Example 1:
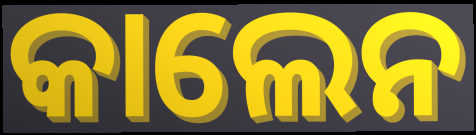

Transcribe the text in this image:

କାଲେନ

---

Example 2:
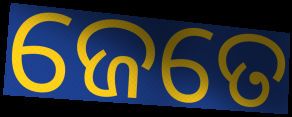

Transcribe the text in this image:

ଜେତେ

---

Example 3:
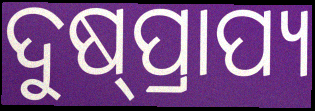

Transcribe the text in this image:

ଦୁଷ୍‌ପ୍ରାପ୍ୟ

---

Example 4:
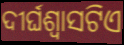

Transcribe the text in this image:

ଦୀର୍ଘଶ୍ୱାସଟିଏ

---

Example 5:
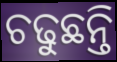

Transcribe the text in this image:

ଚଢୁଛନ୍ତି